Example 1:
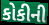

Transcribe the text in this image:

કોકીની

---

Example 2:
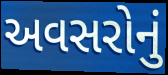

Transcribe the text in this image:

અવસરોનું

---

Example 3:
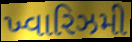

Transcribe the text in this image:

ખ્વારિઝમી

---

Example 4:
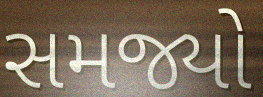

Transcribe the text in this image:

સમજ્યો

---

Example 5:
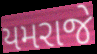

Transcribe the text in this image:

યમરાજે